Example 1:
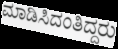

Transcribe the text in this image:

ಮಾಡಿಸಿದಂತಿದ್ದರು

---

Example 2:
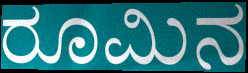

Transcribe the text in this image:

ರೂಮಿನ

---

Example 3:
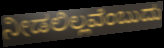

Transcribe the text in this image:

ನೀಡಲಿಲ್ಲವೆಂಬುದು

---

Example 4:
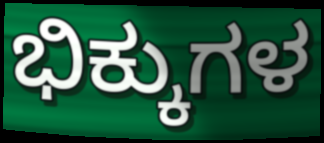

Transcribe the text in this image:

ಭಿಕ್ಕುಗಳ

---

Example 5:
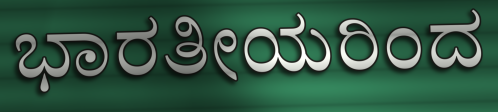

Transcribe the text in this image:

ಭಾರತೀಯರಿಂದ